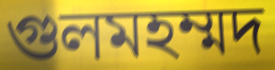
গুলমহম্মদ